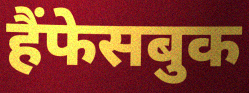
हैंफेसबुक